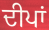
ਦੀਪਾਂ